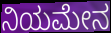
ನಿಯಮೇನ